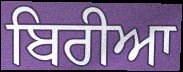
ਬਿਰੀਆ